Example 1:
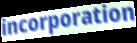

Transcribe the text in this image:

incorporation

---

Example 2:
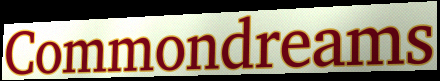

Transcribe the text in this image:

Commondreams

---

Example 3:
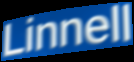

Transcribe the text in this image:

Linnell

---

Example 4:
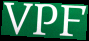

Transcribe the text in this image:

VPF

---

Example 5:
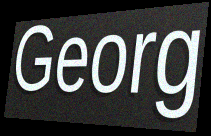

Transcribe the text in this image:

Georg